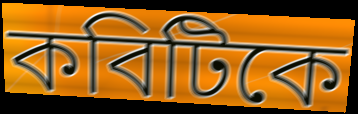
কবিটিকে